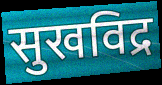
सुखविद्र